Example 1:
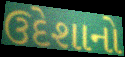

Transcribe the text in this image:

ઉદેશાનો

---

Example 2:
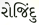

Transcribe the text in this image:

રોજિંદુ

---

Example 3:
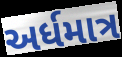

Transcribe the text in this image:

અર્ધમાત્ર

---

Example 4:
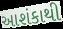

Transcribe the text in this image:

આશંકાથી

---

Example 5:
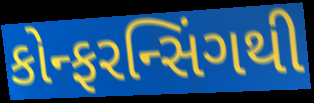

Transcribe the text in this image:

કોન્ફરન્સિંગથી